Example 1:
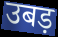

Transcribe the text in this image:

उबड़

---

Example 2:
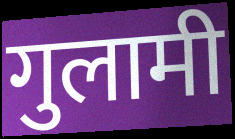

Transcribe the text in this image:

गुलामी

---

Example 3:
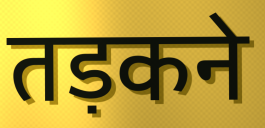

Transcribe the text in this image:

तड़कने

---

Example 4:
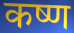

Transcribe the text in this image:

कष्ण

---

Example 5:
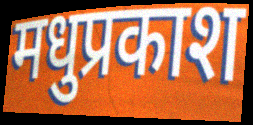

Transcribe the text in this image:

मधुप्रकाश